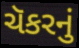
ચૅકરનું